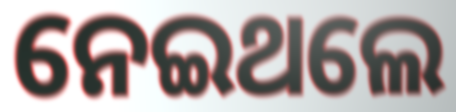
ନେଇଥଲେ